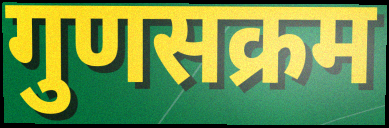
गुणसक्रम